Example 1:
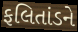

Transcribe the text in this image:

ફલિતાંડને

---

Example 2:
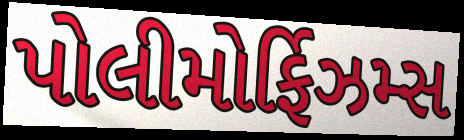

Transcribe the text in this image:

પોલીમોર્ફિઝમ્સ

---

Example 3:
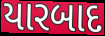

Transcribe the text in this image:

યારબાદ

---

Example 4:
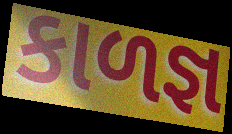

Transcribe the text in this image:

કાળજ્ઞ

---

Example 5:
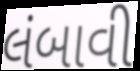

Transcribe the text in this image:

લંબાવી